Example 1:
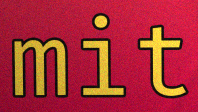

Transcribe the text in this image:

mit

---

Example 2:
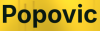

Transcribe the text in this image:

Popovic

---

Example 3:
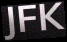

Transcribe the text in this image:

JFK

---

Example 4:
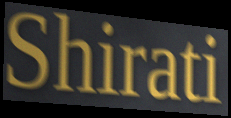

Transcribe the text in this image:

Shirati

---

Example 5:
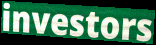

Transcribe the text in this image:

investors